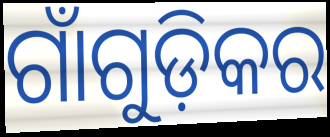
ଗାଁଗୁଡ଼ିକର